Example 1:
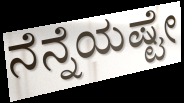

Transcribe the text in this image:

ನೆನ್ನೆಯಷ್ಟೇ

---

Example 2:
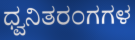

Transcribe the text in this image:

ಧ್ವನಿತರಂಗಗಳ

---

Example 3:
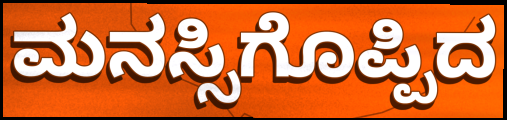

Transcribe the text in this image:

ಮನಸ್ಸಿಗೊಪ್ಪಿದ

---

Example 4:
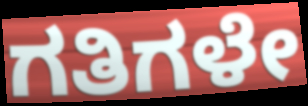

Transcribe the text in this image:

ಗತಿಗಳೇ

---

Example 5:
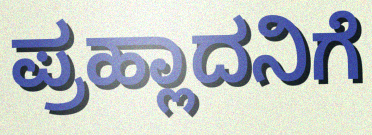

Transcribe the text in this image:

ಪ್ರಹ್ಲಾದನಿಗೆ